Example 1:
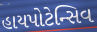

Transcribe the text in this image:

હાયપોટેન્સિવ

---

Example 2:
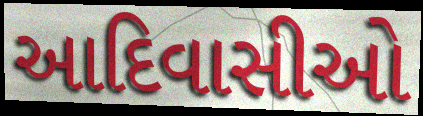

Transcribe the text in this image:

આદિવાસીઓ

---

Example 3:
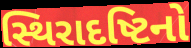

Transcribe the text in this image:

સ્થિરાદષ્ટિનો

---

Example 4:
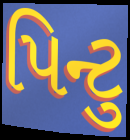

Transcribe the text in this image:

પિન્ટુ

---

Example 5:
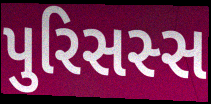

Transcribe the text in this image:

પુરિસસ્સ